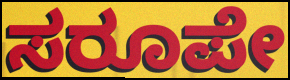
ಸರೂಪೇ